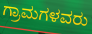
ಗ್ರಾಮಗಳವರು